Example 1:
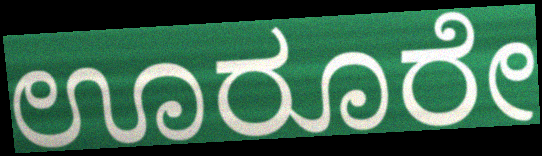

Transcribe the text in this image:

ಊರೂರೇ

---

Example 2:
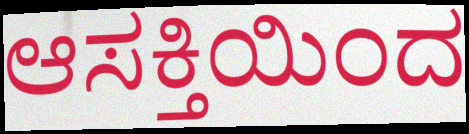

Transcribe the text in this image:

ಆಸಕ್ತಿಯಿಂದ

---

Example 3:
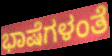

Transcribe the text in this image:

ಭಾಷೆಗಳಂತೆ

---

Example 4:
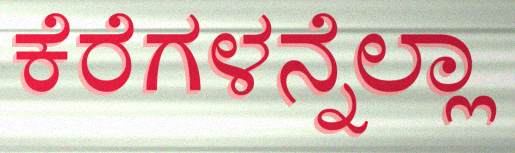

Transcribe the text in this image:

ಕೆರೆಗಳನ್ನೆಲ್ಲಾ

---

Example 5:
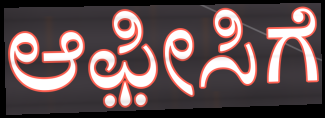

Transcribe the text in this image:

ಆಫ಼ೀಸಿಗೆ